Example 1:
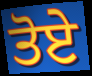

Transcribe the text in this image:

ਤੋਏ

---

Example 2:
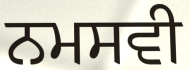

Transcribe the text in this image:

ਨਮਸਵੀ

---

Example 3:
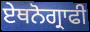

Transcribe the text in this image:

ਏਥਨੋਗ੍ਰਾਫੀ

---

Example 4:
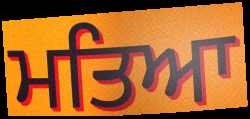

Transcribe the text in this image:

ਮਤਿਆ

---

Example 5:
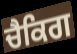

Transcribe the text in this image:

ਚੈਕਿਗ